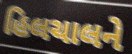
હિલચાલને